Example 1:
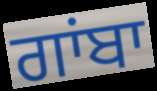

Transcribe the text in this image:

ਗਾਂਬਾ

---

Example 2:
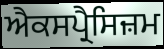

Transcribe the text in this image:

ਐਕਸਪ੍ਰੈਸਿਜ਼ਮ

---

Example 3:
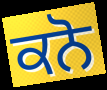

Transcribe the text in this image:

ਕਨੋ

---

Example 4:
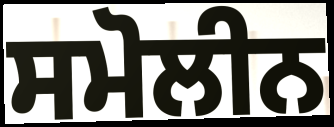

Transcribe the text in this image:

ਸਮੋਲੀਨ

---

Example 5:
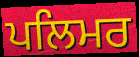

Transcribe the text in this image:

ਪਲਿਮਰ